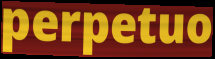
perpetuo